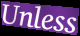
Unless